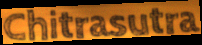
Chitrasutra